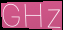
GHz